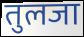
तुलजा